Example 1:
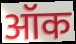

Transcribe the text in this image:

ऑक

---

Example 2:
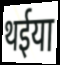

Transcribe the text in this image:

थईया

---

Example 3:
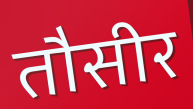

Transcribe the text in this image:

तौसीर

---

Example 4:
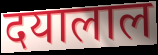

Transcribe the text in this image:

दयालाल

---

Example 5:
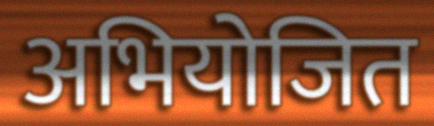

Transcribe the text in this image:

अभियोजित